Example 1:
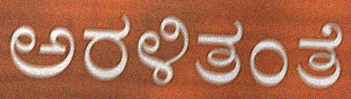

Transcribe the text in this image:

ಅರಳಿತಂತೆ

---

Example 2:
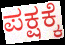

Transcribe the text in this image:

ಪಕ್ಷಕ್ಕೆ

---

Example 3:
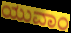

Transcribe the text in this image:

ಯುವಾಂ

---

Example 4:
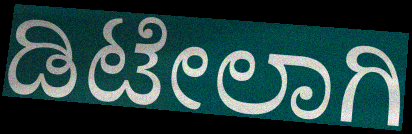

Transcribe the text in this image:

ಡಿಟೇಲಾಗಿ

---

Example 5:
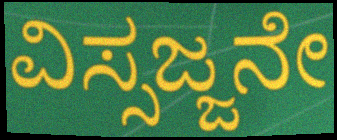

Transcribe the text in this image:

ವಿಸ್ಸಜ್ಜನೇ